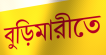
বুড়িমারীতে